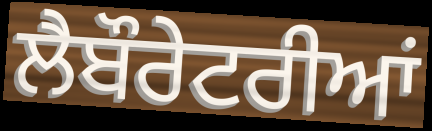
ਲੈਬੌਰੇਟਰੀਆਂ